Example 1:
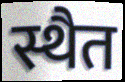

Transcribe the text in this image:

स्थैत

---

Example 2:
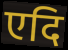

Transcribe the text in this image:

एदि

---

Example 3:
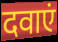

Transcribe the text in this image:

दवाएं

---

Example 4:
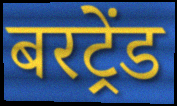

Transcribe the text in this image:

बरट्रेंड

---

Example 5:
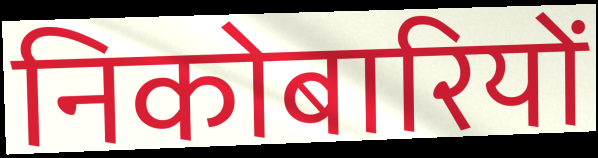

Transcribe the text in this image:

निकोबारियों